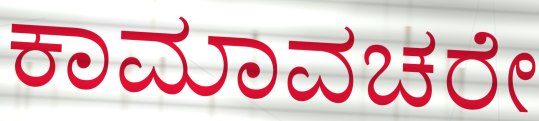
ಕಾಮಾವಚರೇ